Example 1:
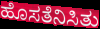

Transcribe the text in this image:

ಹೊಸತೆನಿಸಿತು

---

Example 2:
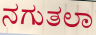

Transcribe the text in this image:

ನಗುತಲಾ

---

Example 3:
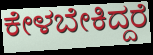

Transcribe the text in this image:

ಕೇಳಬೇಕಿದ್ದರೆ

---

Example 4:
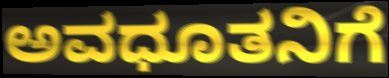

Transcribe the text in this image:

ಅವಧೂತನಿಗೆ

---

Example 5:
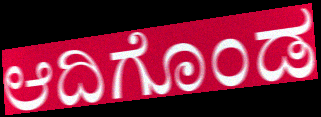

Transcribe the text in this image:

ಆದಿಗೊಂಡ